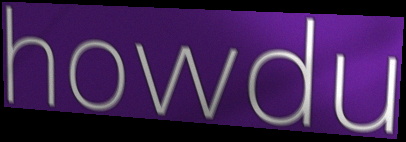
howdu